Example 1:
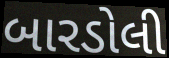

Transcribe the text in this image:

બારડોલી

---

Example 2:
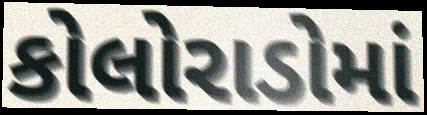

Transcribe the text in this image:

કોલોરાડોમાં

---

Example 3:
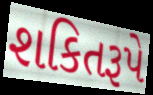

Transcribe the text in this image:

શકિતરૂપે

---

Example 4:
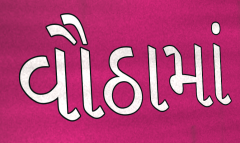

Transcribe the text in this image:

વૌઠામાં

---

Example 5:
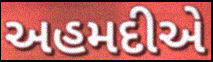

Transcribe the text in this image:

અહમદીએ